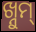
ଖ୍ନୁମ୍